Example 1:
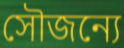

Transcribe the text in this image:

সৌজন্যে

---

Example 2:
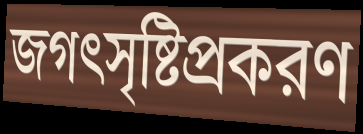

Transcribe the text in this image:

জগৎসৃষ্টিপ্রকরণ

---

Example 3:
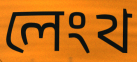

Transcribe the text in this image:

লেংথ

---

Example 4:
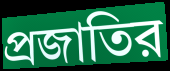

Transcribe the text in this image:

প্রজাতির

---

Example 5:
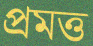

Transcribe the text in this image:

প্রমত্ত